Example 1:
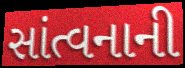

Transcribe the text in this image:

સાંત્વનાની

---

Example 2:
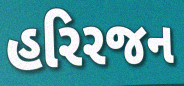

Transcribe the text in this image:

હરિરજન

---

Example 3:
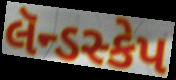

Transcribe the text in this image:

લૅન્ડસ્કેપ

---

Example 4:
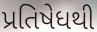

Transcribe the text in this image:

પ્રતિષેધથી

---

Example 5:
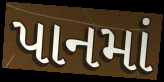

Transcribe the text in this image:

પાનમાં